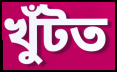
খুঁটত